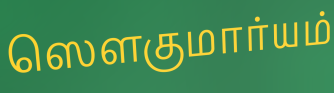
ஸௌகுமார்யம்